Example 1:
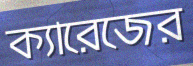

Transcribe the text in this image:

ক্যারেজের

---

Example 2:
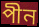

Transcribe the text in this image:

পীন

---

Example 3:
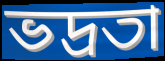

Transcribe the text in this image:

ভদ্রতা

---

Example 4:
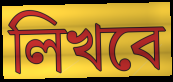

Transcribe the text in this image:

লিখবে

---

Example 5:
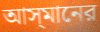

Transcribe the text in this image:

আস্‌মানের